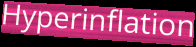
Hyperinflation